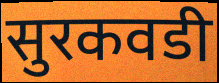
सुरकवडी